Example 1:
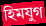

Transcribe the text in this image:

হিমযুগ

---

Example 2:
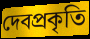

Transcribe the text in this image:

দেবপ্রকৃতি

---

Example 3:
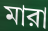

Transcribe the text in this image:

মারা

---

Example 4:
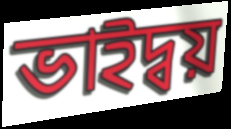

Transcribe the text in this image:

ভাইদ্বয়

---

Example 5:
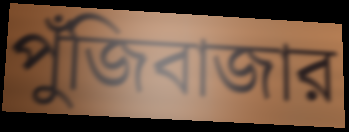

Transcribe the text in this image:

পুঁজিবাজার